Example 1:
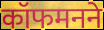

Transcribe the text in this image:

कॉफमनने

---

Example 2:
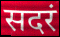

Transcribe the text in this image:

सदरं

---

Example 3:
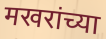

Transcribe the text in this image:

मखरांच्या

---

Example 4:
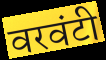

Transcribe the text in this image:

वरवंटी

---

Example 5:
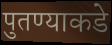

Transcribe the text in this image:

पुतण्याकडे